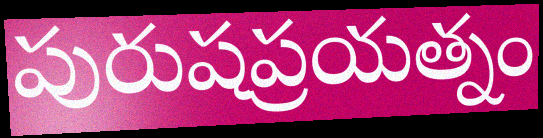
పురుషప్రయత్నం